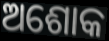
ଅଶୋକ